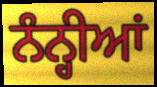
ਨੰਨ੍ਹੀਆਂ